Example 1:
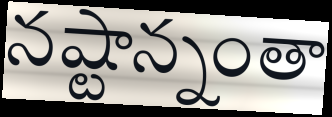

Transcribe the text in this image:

నష్టాన్నంతా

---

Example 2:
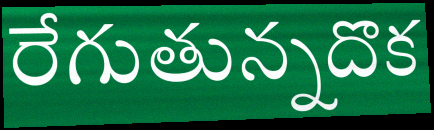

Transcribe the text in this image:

రేగుతున్నదొక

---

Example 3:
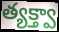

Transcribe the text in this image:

త్యక్త్వా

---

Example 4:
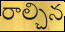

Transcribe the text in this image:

రాల్చిన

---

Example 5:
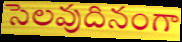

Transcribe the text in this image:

సెలవుదినంగా